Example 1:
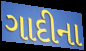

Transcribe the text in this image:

ગાદીના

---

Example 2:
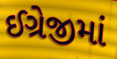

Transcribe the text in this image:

ઈગ્રેજીમાં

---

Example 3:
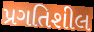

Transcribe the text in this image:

પ્રગતિશીલ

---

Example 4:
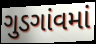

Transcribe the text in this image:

ગુડગાંવમાં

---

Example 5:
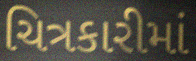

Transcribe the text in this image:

ચિત્રકારીમાં